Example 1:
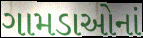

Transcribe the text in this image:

ગામડાઓનાં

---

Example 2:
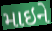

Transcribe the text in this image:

માઇને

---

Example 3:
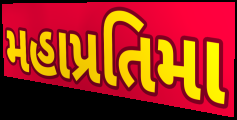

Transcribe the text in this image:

મહાપ્રતિમા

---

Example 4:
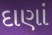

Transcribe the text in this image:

દાણાં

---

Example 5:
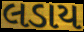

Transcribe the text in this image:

લડાય